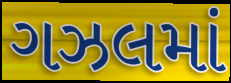
ગઝલમાં